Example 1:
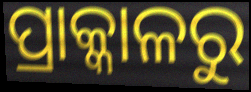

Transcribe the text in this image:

ପ୍ରାକ୍କାଳରୁ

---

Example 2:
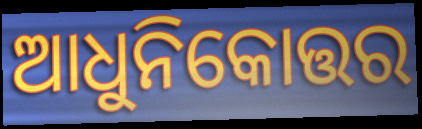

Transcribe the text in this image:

ଆଧୁନିକୋତ୍ତର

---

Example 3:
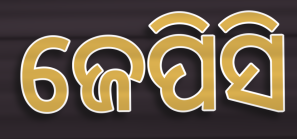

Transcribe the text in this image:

ଜେପିସି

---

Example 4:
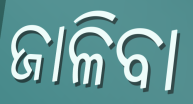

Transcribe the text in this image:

ଜାଳିବା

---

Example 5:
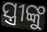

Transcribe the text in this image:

ସ୍ତ୍ରୀଙ୍କୁ